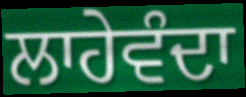
ਲਾਹੇਵੰਦਾ